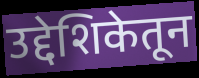
उद्देशिकेतून